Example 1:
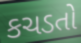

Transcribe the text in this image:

કચડતો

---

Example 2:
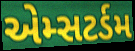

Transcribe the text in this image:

એમ્સટર્ડમ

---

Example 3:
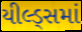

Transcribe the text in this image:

યીલ્ડ્સમાં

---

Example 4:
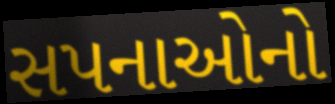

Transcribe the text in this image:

સપનાઓનો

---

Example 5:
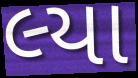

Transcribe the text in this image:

લ્યા